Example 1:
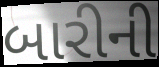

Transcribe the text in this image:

બારીની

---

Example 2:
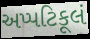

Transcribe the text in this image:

અપ્પટિકૂલં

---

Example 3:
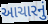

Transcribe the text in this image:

આચારનું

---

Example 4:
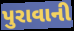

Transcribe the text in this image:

પુરાવાની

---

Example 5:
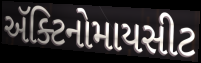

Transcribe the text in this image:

ઍક્ટિનોમાયસીટ